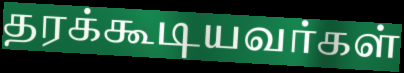
தரக்கூடியவர்கள்